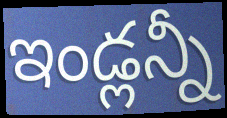
ఇండ్లన్నీ